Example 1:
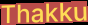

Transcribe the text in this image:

Thakku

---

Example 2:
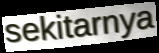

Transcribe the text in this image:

sekitarnya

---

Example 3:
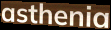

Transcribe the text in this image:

asthenia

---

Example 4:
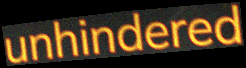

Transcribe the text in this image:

unhindered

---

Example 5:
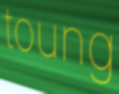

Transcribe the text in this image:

toung